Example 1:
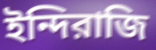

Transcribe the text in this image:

ইন্দিরাজি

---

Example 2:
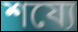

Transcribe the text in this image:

শয্যে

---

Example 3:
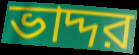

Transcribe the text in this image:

ভাদ্দর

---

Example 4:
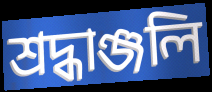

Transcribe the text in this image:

শ্রদ্ধাঞ্জলি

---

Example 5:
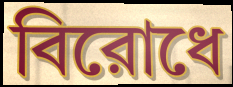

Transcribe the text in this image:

বিরোধে